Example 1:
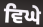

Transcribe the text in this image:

ਵਿਘੇ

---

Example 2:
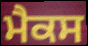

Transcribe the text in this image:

ਮੈਕਸ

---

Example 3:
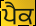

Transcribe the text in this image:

ਪੈਕ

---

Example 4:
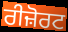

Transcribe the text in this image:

ਰੀਜ਼ੋਰਟ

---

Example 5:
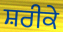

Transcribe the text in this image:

ਸ਼ਰੀਕੇ